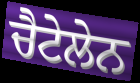
ਚੈਟੇਲੇਨ